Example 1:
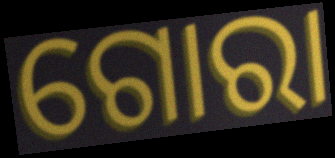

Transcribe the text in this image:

ଗୋରା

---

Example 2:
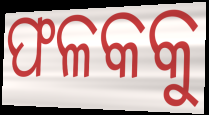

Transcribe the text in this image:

ଫଳକକୁ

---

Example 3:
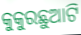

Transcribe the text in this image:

କୁକୁରଛୁଆଟି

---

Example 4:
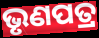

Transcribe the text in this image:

ଭୃଣପତ୍ର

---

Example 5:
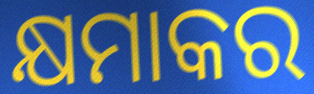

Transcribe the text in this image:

କ୍ଷମାକର